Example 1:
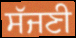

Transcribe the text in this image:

ਸੱਜਣੀ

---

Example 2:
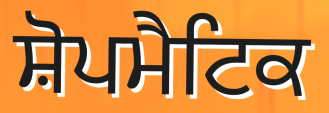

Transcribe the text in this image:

ਸ਼ੋਪਮੈਟਿਕ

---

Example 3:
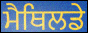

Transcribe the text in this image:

ਮੈਥਿਲਡੇ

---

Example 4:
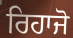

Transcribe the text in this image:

ਰਿਹਾਜੋ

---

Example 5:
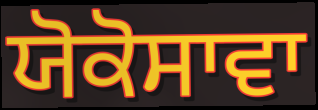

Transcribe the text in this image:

ਯੋਕੋਸਾਵਾ